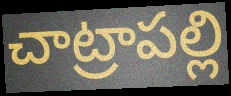
చాట్రాపల్లి